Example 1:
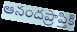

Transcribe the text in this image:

ఆనందప్రాప్తికి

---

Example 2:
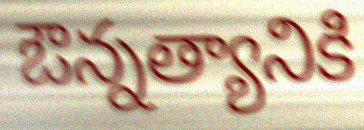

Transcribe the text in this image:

ఔన్నత్యానికి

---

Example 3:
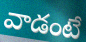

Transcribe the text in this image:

వాడంటే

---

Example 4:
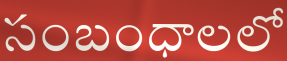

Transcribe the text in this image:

సంబంధాలలో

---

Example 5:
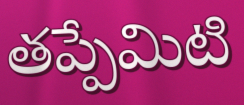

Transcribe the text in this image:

తప్పేమిటి